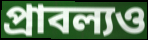
প্রাবল্যও